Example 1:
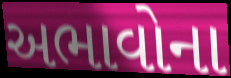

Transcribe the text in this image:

અભાવોના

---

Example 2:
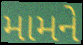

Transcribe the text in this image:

મામને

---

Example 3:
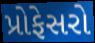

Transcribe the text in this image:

પ્રોફેસરો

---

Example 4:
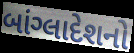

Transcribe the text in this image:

બાંગ્લાદેશનો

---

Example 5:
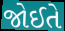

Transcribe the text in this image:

જોઈતે